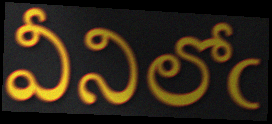
వీనిలోఁ